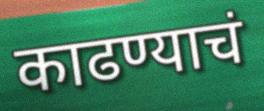
काढण्याचं